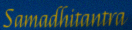
Samadhitantra